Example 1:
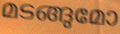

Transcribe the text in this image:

മടങ്ങുമോ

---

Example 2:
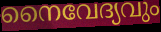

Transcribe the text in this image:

നൈവേദ്യവും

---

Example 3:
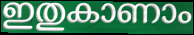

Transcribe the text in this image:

ഇതുകാണാം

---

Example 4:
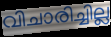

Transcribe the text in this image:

വിചാരിച്ചില്ല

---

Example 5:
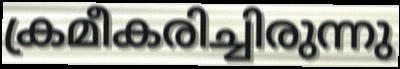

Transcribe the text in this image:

ക്രമീകരിച്ചിരുന്നു